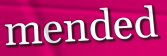
mended